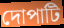
দোপাটি